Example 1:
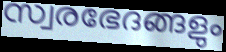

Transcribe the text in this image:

സ്വരഭേദങ്ങളും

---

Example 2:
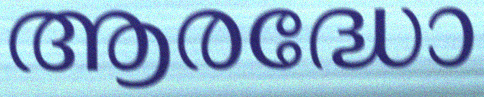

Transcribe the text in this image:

ആരദ്ധോ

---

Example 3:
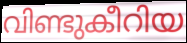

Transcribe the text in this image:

വിണ്ടുകീറിയ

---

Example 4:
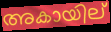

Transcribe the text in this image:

അകായില്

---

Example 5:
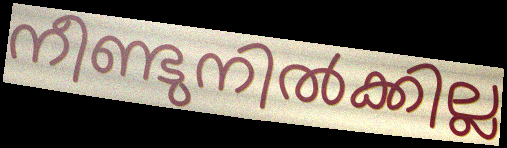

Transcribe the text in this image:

നീണ്ടുനിൽക്കില്ല